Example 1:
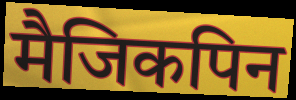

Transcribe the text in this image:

मैजिकपिन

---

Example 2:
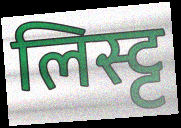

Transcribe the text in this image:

लिस्ट्ट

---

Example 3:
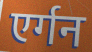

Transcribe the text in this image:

एर्गन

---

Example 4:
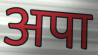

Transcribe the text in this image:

अपा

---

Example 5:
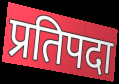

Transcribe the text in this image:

प्रतिपदा